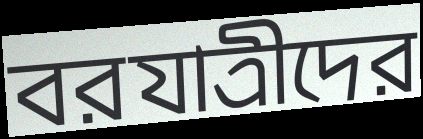
বরযাত্রীদের